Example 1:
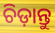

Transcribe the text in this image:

ଚିଡ଼ାନ୍ତୁ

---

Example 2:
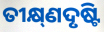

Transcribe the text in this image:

ତୀକ୍ଷ୍‌ଣଦୃଷ୍ଟି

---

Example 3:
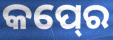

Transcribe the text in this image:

କପ୍‍ରେ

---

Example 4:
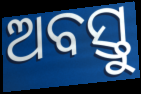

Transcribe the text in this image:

ଅବସ୍ତୁ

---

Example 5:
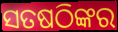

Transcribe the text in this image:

ସତଷଠିଙ୍କର